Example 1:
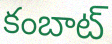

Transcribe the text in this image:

కంబాట్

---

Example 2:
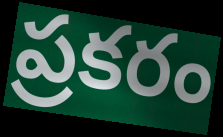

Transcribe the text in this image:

ప్రకరం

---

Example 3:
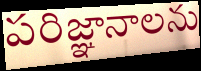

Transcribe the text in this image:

పరిజ్ఞానాలను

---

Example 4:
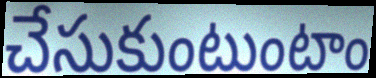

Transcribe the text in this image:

చేసుకుంటుంటాం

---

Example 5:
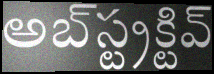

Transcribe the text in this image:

అబ్‌స్ట్రక్టివ్